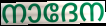
നാദേന